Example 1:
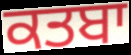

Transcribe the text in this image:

ਕਤਬਾ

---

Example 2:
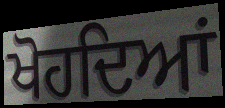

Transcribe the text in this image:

ਖੋਹਦਿਆਂ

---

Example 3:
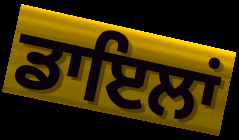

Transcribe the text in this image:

ਡਾਇਲਾਂ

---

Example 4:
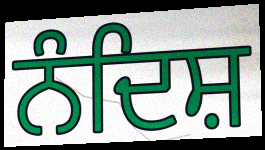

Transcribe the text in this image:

ਨੰਦਿਸ਼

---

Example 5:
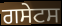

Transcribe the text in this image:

ਗਸੇਟਸ